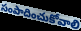
సంపాదించుకోవాలి